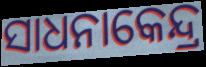
ସାଧନାକେନ୍ଦ୍ର